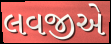
લવજીએ